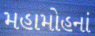
મહામોહનાં